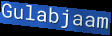
Gulabjaam